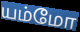
யம்மோ